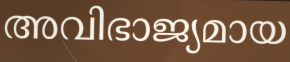
അവിഭാജ്യമായ